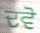
ਦਵੋ